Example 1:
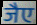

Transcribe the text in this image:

जैए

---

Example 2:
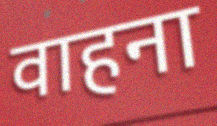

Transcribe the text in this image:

वाहना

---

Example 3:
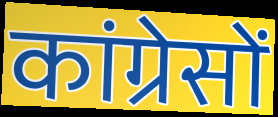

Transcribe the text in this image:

कांग्रेसों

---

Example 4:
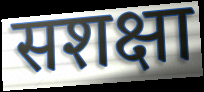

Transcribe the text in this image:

सशक्षा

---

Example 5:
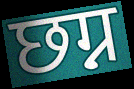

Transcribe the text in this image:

छग्न